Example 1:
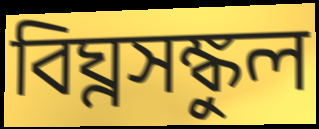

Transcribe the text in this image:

বিঘ্নসঙ্কুল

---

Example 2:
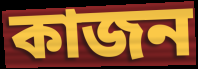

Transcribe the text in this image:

কাজন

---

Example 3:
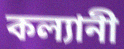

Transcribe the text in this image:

কল্যানী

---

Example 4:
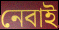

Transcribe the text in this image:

নেবাই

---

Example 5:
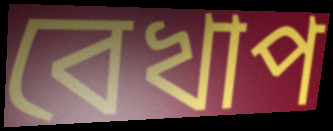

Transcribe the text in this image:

বেখাপ